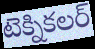
టెక్నికలర్